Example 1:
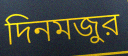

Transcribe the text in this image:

দিনমজুর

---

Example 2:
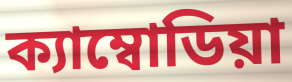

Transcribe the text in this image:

ক্যাম্বোডিয়া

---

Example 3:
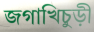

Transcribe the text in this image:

জগাখিচুড়ী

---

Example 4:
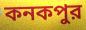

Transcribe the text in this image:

কনকপুর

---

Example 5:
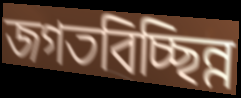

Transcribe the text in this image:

জগতবিচ্ছিন্ন